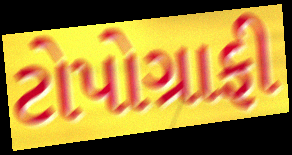
ટોપોગ્રાફી